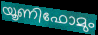
യൂണിഫോമും